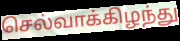
செல்வாக்கிழந்து